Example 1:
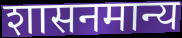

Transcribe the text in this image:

शासनमान्य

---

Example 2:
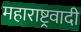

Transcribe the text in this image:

महाराष्ट्रवादी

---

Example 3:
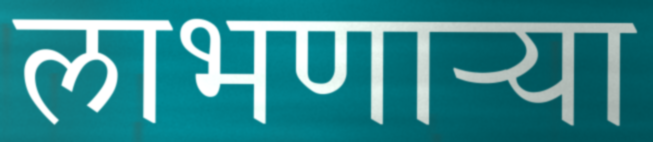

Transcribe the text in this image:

लाभणाऱ्या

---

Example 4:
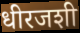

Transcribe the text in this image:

धीरजशी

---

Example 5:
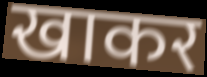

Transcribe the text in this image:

खाकर